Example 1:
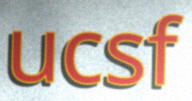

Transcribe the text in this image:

ucsf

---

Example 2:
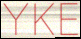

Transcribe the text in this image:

YKE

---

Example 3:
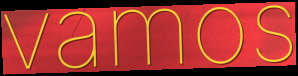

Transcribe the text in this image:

vamos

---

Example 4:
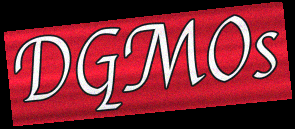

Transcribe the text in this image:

DGMOs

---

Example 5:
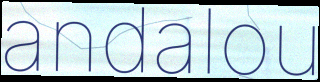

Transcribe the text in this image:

andalou